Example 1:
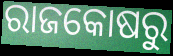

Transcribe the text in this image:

ରାଜକୋଷରୁ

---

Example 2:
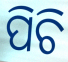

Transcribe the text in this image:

ପିଚି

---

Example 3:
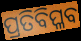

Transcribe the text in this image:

ପ୍ରତିବିପ୍ଳବ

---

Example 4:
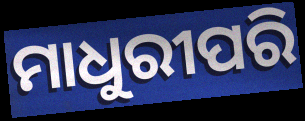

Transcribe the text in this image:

ମାଧୁରୀପରି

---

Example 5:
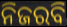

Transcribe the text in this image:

ନିଜରବି